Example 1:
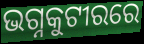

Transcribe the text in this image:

ଭଗ୍ନକୁଟୀରରେ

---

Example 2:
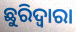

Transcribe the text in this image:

ଛୁରିଦ୍ୱାରା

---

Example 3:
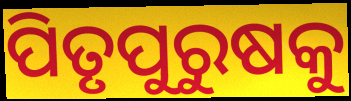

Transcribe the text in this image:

ପିତୃପୁରୁଷକୁ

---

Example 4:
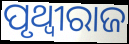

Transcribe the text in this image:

ପୃଥ୍ବୀରାଜ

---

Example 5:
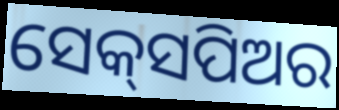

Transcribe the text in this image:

ସେକ୍‌ସପିଅର